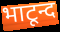
भाटून्द